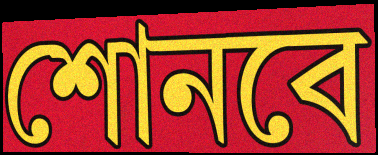
শোনবে